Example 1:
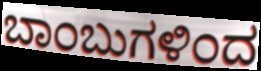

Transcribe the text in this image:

ಬಾಂಬುಗಳಿಂದ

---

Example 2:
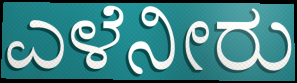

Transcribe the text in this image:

ಎಳೆನೀರು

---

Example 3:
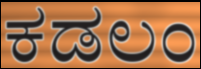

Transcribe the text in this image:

ಕಡಲಂ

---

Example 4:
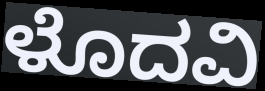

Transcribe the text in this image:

ಳೊದವಿ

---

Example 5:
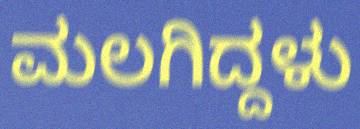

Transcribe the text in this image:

ಮಲಗಿದ್ದಳು